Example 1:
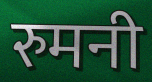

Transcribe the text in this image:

रुमनी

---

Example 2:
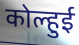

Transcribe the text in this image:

कोल्हुई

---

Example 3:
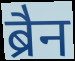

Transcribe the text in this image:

ब्रैन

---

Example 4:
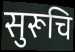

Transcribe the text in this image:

सुरूचि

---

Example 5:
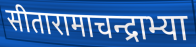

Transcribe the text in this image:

सीतारामाचन्द्राभ्या